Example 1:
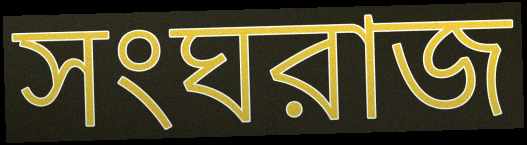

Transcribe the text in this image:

সংঘরাজ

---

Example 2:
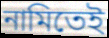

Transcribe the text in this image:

নামিতেই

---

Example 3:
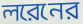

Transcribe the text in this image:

লরেনের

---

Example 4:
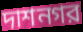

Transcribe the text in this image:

দাশনগর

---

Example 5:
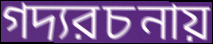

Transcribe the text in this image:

গদ্যরচনায়